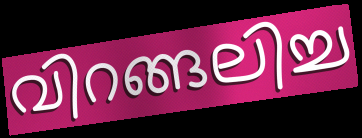
വിറങ്ങലിച്ച